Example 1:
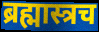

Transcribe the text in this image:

ब्रह्मास्त्रच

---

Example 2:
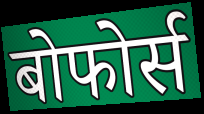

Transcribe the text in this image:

बोफोर्स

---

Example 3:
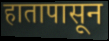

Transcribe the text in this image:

हातापासून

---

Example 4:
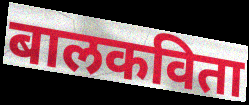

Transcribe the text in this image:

बालकविता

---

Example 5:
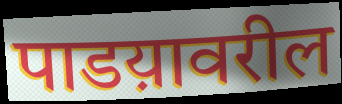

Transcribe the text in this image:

पाडय़ावरील